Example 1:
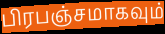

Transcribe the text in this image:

பிரபஞ்சமாகவும்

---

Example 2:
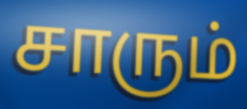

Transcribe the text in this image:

சாரும்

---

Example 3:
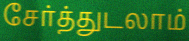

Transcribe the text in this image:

சேர்த்துடலாம்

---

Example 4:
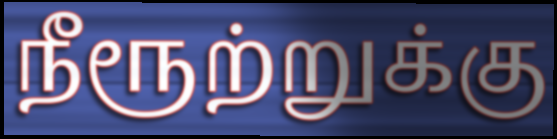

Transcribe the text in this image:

நீரூற்றுக்கு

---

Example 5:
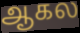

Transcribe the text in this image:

ஆகல